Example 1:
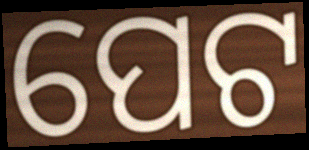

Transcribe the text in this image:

ପେଟ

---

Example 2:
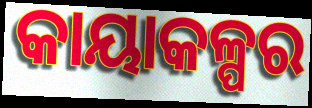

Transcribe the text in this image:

କାୟାକଳ୍ପର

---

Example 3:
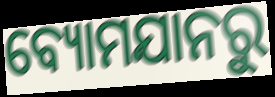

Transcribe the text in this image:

ବ୍ୟୋମଯାନରୁ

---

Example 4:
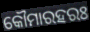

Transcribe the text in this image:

କୌମାରହରଃ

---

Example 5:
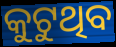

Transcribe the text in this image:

କୁଟୁଥିବ